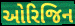
ઓરિજિન